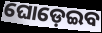
ଘୋଡ଼େଇବ